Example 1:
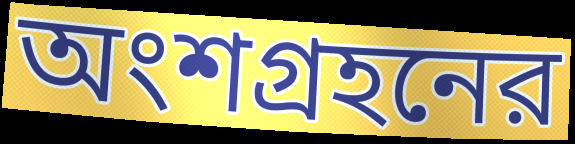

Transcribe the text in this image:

অংশগ্রহনের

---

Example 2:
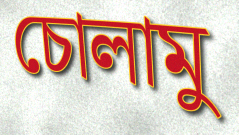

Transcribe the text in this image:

চোলামু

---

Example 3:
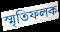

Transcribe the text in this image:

স্মৃতিফলক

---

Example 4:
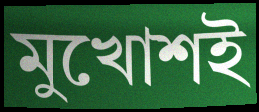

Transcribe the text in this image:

মুখোশই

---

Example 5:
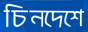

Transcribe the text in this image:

চিনদেশে